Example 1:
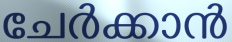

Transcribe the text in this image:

ചേർക്കാൻ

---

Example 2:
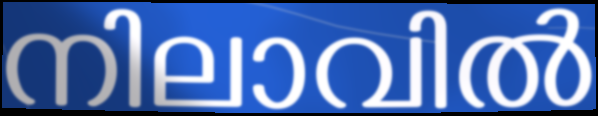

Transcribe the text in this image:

നിലാവിൽ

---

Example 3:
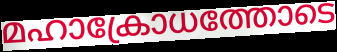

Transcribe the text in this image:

മഹാക്രോധത്തോടെ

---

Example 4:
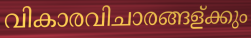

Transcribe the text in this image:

വികാരവിചാരങ്ങള്ക്കും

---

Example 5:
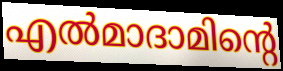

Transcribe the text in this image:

എൽമാദാമിന്റെ